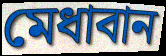
মেধাবান